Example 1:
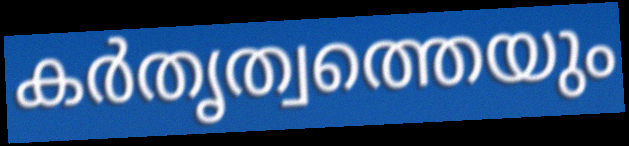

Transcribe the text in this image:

കർതൃത്വത്തെയും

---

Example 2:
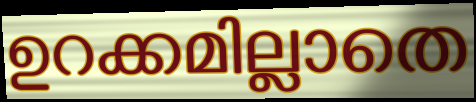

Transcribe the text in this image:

ഉറക്കമില്ലാതെ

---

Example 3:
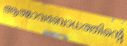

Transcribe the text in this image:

ആത്മാവബോധത്തിന്റെ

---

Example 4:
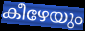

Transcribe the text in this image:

കീഴേയും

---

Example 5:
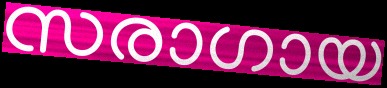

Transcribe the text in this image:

സരാഗായ